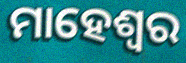
ମାହେଶ୍ଵର